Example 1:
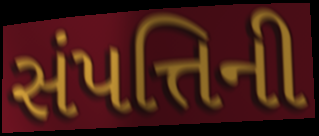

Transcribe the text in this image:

સંપત્તિની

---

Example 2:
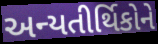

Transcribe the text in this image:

અન્યતીર્થિકોને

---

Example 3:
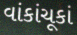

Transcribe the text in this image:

વાંકાંચૂકાં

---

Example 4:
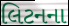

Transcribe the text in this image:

લિટનના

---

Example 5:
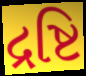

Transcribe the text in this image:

દ્રષ્ટિ